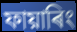
ফায়াৰিং